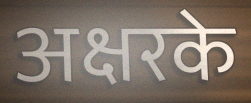
अक्षरके